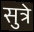
सुत्रे